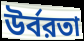
উর্বরতা